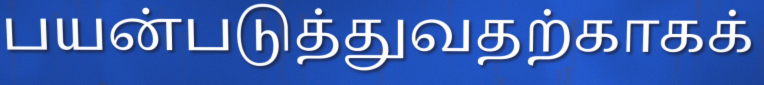
பயன்படுத்துவதற்காகக்